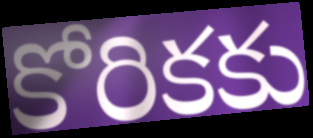
కోరికకు